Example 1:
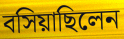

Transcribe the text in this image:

বসিয়াছিলেন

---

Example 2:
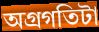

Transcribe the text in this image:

অগ্রগতিটা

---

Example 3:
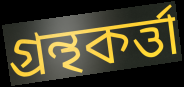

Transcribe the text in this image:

গ্রন্থকর্ত্তা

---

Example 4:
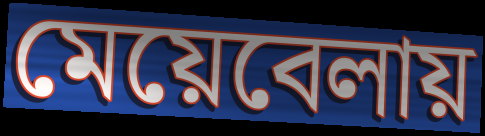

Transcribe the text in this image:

মেয়েবেলায়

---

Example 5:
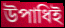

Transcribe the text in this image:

উপাধিই